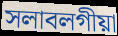
সলাবলগীয়া